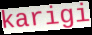
karigi